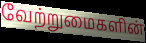
வேற்றுமைகளின்